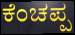
ಕೆಂಚಪ್ಪ